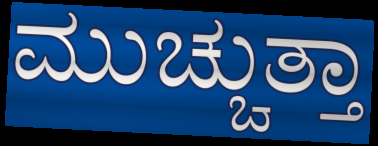
ಮುಚ್ಚುತ್ತಾ